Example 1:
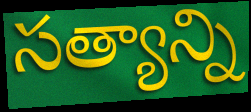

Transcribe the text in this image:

సత్యాన్ని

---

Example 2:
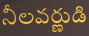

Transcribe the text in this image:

నీలవర్ణుడి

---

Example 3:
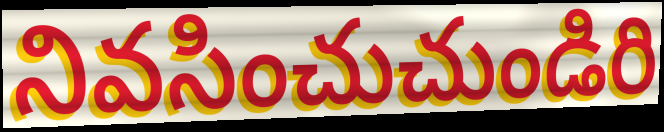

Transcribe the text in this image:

నివసించుచుండిరి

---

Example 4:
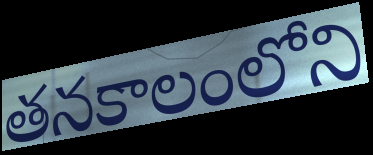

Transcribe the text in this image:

తనకాలంలోని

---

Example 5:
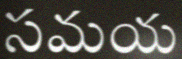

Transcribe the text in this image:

సమయ